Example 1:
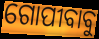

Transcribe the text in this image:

ଗୋପୀବାବୁ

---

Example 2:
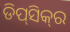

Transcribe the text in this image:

ଡିପ୍‌ସିକ୍‌ର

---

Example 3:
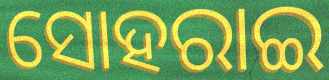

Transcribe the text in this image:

ସୋହରାଇ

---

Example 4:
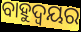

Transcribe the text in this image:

ବାହୁଦ୍ୱୟର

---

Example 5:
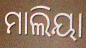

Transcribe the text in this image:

ମାଲିୟା